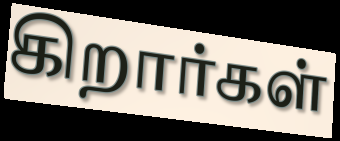
கிறார்கள்